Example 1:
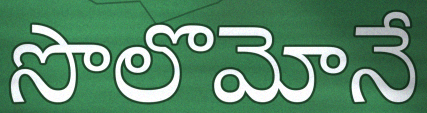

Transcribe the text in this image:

సొలొమోనే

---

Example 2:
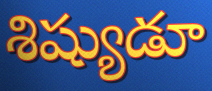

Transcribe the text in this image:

శిష్యుడూ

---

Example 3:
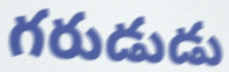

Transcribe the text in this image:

గరుడుడు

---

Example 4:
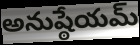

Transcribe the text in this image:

అనుష్ఠేయమ్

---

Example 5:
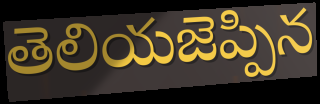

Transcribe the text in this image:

తెలియజెప్పిన